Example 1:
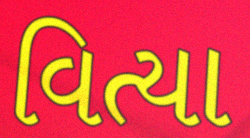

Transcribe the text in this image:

વિત્યા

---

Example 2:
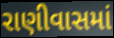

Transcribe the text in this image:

રાણીવાસમાં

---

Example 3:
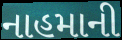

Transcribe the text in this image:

નાહમાની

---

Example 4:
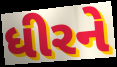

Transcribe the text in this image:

ધીરને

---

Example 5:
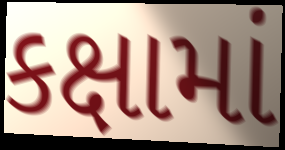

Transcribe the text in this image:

કક્ષામાં